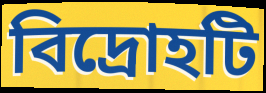
বিদ্রোহটি